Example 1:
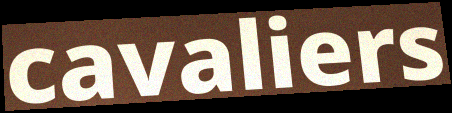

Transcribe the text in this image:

cavaliers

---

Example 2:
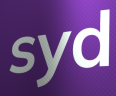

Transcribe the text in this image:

syd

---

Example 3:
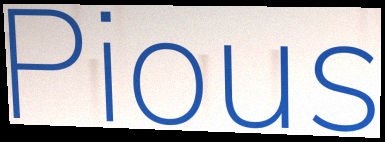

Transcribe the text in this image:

Pious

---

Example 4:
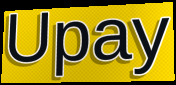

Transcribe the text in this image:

Upay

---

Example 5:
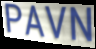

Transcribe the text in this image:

PAVN